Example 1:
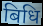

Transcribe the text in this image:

बिधि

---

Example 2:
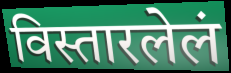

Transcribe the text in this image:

विस्तारलेलं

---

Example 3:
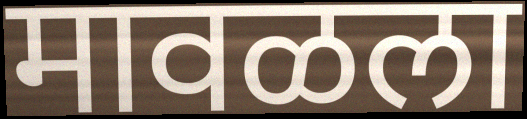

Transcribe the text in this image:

मावळला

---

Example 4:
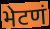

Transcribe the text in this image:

भेटणं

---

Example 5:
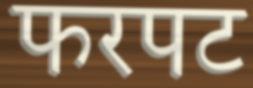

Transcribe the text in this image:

फरपट